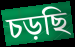
চড়ছি